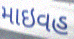
માઇવહ